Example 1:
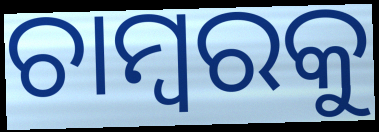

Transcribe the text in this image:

ଚାମ୍ବରକୁ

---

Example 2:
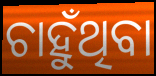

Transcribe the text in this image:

ଚାହୁଁଥିବା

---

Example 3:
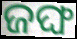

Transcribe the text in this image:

ଜଙ୍ଘ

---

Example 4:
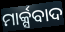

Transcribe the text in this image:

ମାର୍କ୍ସବାଦ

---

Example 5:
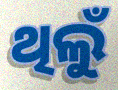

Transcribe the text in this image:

ଥିଲୁଁ